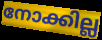
നോക്കില്ല